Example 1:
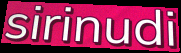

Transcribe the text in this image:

sirinudi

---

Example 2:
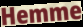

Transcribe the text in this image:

Hemme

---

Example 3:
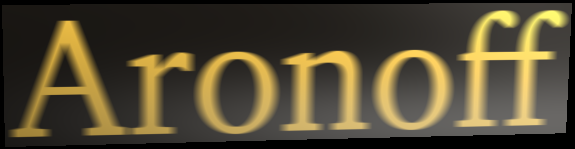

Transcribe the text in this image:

Aronoff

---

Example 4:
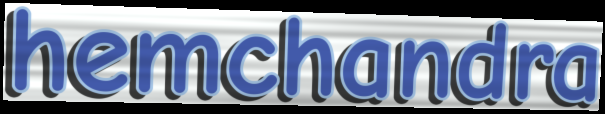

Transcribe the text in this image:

hemchandra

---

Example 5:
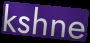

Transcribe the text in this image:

kshne